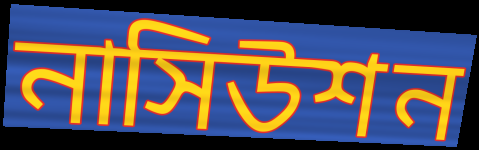
নাসিউশন